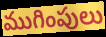
ముగింపులు